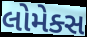
લોમેક્સ